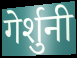
गेर्शुनी